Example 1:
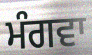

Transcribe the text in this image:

ਮੰਗਵਾ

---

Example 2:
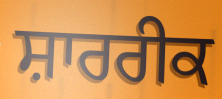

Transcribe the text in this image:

ਸ਼ਾਰਰੀਕ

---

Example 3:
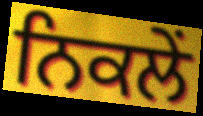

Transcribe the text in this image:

ਨਿਕਲੇਂ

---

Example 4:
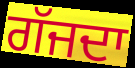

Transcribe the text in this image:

ਗੱਜਦਾ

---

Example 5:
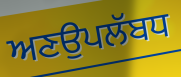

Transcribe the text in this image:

ਅਣਉਪਲੱਬਧ